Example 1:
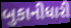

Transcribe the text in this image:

બુકાનીધારી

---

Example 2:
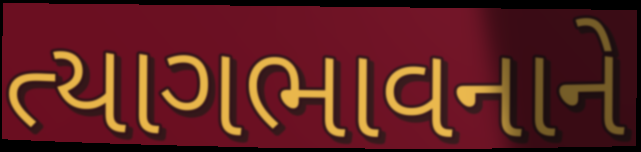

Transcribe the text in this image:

ત્યાગભાવનાને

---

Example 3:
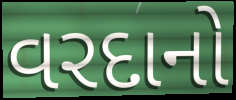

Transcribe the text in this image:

વરદાનો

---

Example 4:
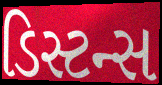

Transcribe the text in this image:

ડિસ્ટન્સ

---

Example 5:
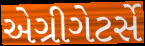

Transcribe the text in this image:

એગ્રીગેટર્સે